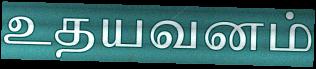
உதயவனம்